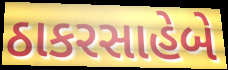
ઠાકરસાહેબે